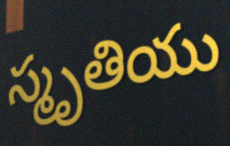
స్మృతియు